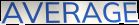
AVERAGE